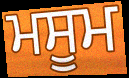
ਮਸੂਮ